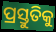
ପ୍ରସ୍ତୁତିକୁ